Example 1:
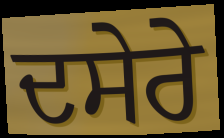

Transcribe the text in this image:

ਦਸੇਰੇ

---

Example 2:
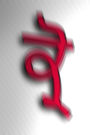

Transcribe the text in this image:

ਕ੍ਰੋ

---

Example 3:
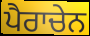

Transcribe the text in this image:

ਪੈਰਾਚੇਨ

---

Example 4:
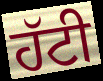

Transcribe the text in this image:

ਹੱਟੀ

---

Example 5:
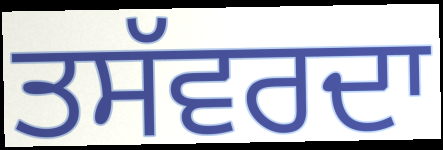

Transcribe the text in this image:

ਤਸੱਵਰਦਾ